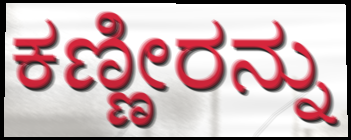
ಕಣ್ಣೀರನ್ನು